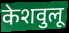
केशवुलू